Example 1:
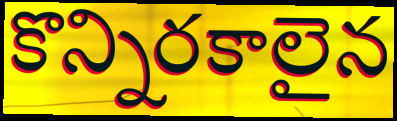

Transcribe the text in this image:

కొన్నిరకాలైన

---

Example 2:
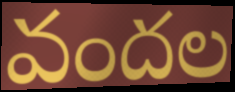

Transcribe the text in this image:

వందల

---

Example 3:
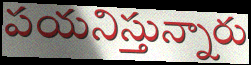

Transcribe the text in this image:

పయనిస్తున్నారు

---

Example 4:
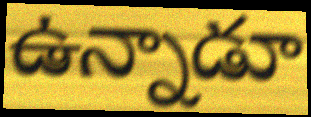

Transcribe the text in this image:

ఉన్నాడూ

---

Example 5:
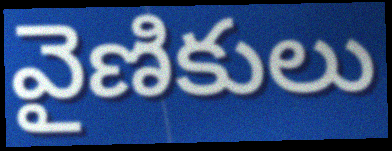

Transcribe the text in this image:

వైణికులు